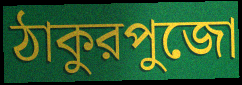
ঠাকুরপুজো